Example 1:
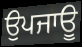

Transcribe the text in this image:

ਉਪਜਾਊ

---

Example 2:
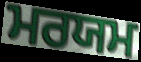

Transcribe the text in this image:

ਮਰਯਮ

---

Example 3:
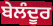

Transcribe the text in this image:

ਬੇਲੰਦੂਰ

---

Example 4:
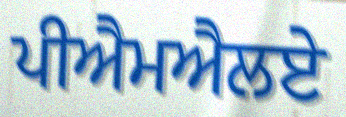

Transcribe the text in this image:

ਪੀਐਮਐਲਏ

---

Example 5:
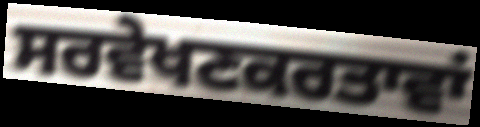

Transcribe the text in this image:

ਸਰਵੇਖਣਕਰਤਾਵਾਂ